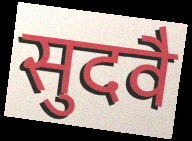
सुदवै